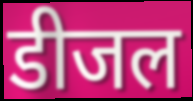
डीजल